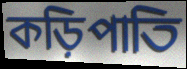
কড়িপাতি